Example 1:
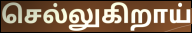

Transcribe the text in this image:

செல்லுகிறாய்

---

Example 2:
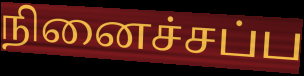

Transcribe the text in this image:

நினைச்சப்ப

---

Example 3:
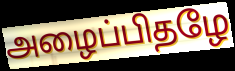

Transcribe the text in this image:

அழைப்பிதழே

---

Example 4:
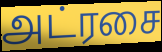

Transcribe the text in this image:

அட்ரசை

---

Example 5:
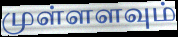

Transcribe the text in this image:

முள்ளளவும்